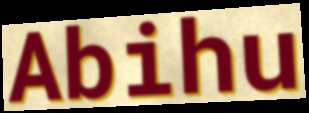
Abihu